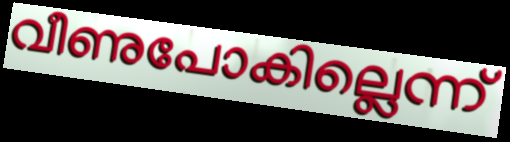
വീണുപോകില്ലെന്ന്